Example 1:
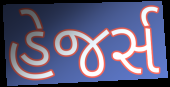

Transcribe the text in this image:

હેજર્સ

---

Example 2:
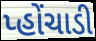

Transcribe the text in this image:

પ્હોંચાડી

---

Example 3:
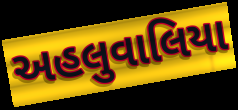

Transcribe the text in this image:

અહલુવાલિયા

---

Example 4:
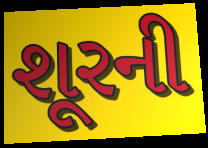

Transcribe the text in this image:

શૂરની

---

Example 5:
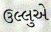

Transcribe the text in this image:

ઉલ્લુએ